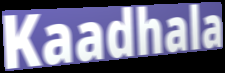
Kaadhala